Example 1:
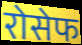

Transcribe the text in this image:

रोसेफ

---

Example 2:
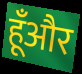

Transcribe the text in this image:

हूँऔर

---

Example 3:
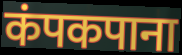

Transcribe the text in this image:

कंपकपाना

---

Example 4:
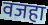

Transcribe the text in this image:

वजहा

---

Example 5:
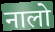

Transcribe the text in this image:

नालो